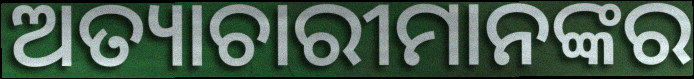
ଅତ୍ୟାଚାରୀମାନଙ୍କର